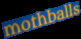
mothballs